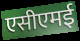
एसीएमई